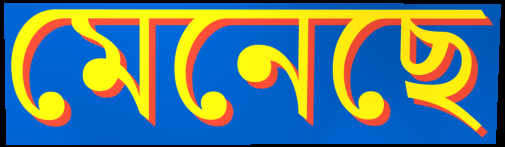
মেনেছে